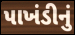
પાખંડીનું